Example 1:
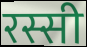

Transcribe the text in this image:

रस्सी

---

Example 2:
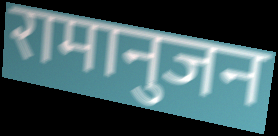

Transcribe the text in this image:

रामानुजन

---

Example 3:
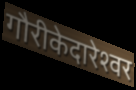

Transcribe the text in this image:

गौरीकेदारेश्वर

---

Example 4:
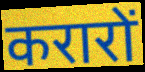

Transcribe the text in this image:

करारों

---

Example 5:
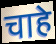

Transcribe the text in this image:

चाहे